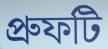
প্রুফটি